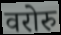
वरोरु